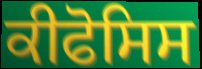
ਕੀਫੋਸਿਸ